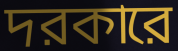
দরকারে